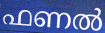
ഫണൽ